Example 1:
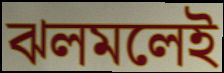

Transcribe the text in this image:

ঝলমলেই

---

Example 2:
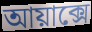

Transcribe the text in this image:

আয়াক্সে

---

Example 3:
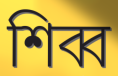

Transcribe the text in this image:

শিব্ব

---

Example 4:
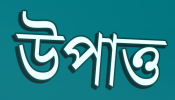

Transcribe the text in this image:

উপাত্ত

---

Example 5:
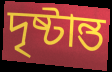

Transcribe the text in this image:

দৃষ্টান্ত